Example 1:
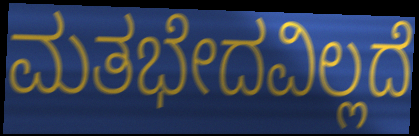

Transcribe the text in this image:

ಮತಭೇದವಿಲ್ಲದೆ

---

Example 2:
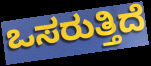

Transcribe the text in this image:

ಒಸರುತ್ತಿದೆ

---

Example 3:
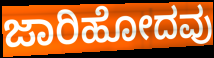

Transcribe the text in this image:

ಜಾರಿಹೋದವು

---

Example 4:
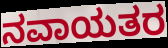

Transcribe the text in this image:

ನವಾಯತರ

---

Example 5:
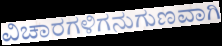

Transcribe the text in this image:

ವಿಚಾರಗಳಿಗನುಗುಣವಾಗಿ